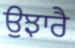
ਉਝਾਰੈ